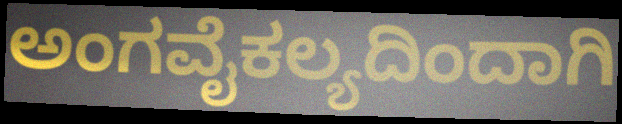
ಅಂಗವೈಕಲ್ಯದಿಂದಾಗಿ